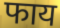
फाय